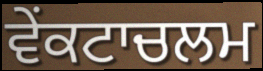
ਵੇਂਕਟਾਚਲਮ